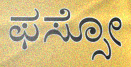
ಫಸ್ಸೋ